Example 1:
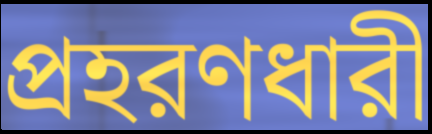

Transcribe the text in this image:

প্রহরণধারী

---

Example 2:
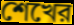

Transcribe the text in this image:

শেখের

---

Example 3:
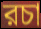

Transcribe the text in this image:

রচা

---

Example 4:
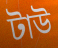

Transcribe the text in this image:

টাউ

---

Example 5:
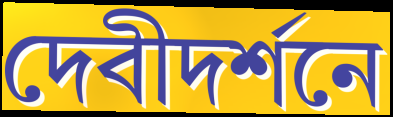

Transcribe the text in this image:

দেবীদর্শনে